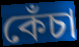
কেঁচা